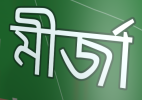
মীর্জা